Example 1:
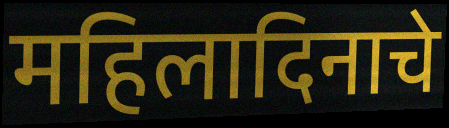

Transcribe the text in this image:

महिलादिनाचे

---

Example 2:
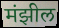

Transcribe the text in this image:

मंझील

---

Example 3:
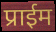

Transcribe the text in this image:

प्राईम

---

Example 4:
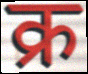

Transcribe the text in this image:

क्र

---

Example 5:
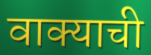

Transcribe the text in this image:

वाक्याची